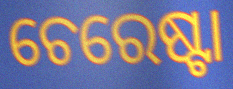
ଚେରେଷ୍ଟା